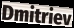
Dmitriev